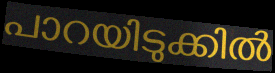
പാറയിടുക്കിൽ